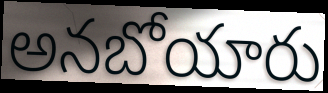
అనబోయారు